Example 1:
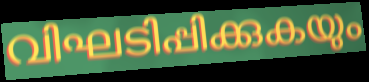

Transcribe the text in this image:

വിഘടിപ്പിക്കുകയും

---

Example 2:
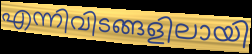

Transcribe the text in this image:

എന്നിവിടങ്ങളിലായി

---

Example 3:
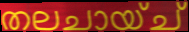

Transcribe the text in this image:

തലചായ്ച്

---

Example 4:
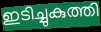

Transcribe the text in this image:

ഇടിച്ചുകുത്തി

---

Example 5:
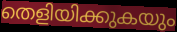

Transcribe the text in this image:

തെളിയിക്കുകയും